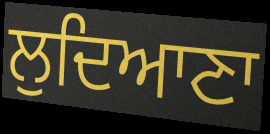
ਲੁਦਿਆਣਾ